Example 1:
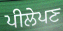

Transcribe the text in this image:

ਪੀਲੇਪਣ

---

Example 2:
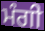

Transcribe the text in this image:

ਮੰਗੀ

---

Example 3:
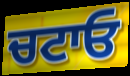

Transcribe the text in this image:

ਚਟਾਓ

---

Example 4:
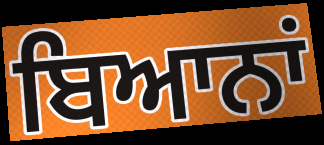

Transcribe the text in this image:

ਬਿਆਨਾਂ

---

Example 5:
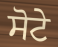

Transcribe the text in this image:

ਸੋਟੇ